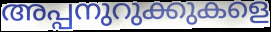
അപ്പനുറുക്കുകളെ